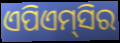
ଏପିଏମ୍‌ସିର